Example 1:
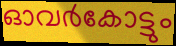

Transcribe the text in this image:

ഓവർകോട്ടും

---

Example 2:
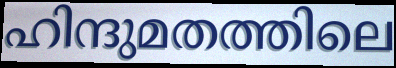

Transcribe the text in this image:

ഹിന്ദുമതത്തിലെ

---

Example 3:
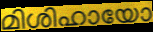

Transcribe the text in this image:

മിശിഹായോ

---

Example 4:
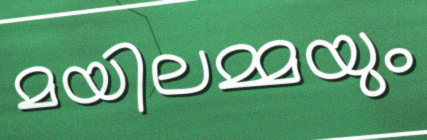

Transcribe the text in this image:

മയിലമ്മയും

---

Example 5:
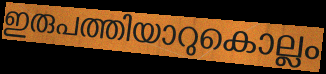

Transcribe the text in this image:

ഇരുപത്തിയാറുകൊല്ലം